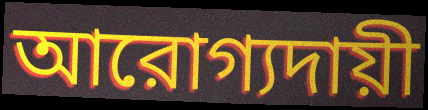
আরোগ্যদায়ী